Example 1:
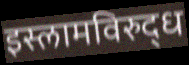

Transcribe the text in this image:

इस्लामविरुद्ध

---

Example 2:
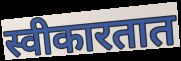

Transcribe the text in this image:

स्वीकारतात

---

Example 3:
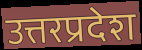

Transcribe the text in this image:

उत्तरप्रदेश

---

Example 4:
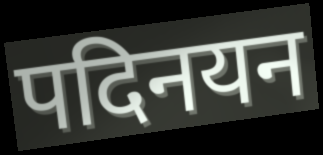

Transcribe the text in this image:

पदिनयन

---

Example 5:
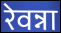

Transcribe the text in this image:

रेवन्ना